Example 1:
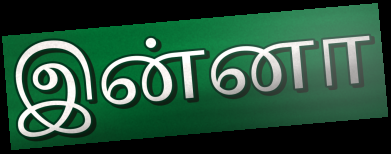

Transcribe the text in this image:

இன்னா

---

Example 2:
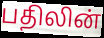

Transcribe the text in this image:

பதிலின்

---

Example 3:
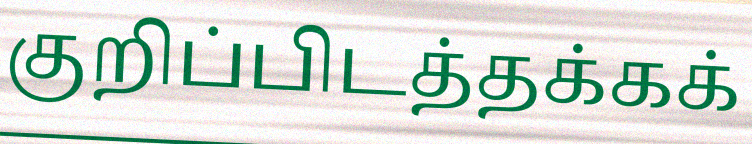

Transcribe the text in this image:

குறிப்பிடத்தக்கக்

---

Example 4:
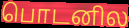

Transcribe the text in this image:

பொடனில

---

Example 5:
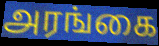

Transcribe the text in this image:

அரங்கை